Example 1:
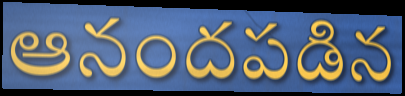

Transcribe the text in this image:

ఆనందపడిన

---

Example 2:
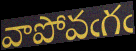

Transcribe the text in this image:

వాపోవఁగఁ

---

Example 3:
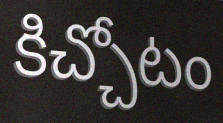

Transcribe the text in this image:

కిచ్చోటం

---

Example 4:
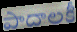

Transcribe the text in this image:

పాదాలకీ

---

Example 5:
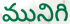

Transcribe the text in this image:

మునిగి